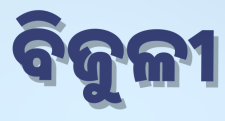
ବିଜୁଳୀ